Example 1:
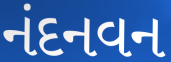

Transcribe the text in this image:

નંદનવન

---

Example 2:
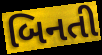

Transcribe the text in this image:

બિનતી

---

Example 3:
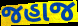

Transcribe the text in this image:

જહાજ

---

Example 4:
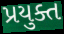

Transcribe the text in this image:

પ્રયુક્ત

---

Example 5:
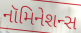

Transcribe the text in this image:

નૉમિનેશન્સ